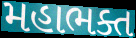
મહાભક્ત